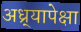
अध्र्यापेक्षा